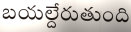
బయల్దేరుతుంది